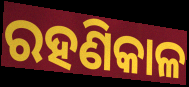
ରହଣିକାଳ